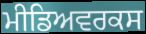
ਮੀਡਿਅਵਰਕਸ